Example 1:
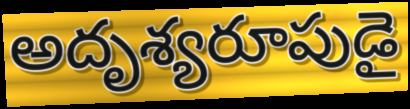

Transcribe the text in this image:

అదృశ్యరూపుడై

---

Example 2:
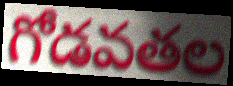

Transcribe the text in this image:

గోడవతల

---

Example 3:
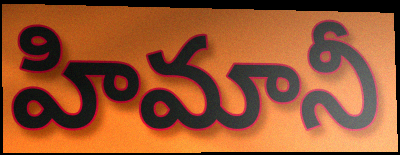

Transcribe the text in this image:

హిమానీ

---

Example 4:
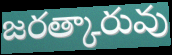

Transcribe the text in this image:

జరత్కారువు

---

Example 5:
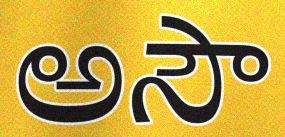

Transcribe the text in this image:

అసౌ